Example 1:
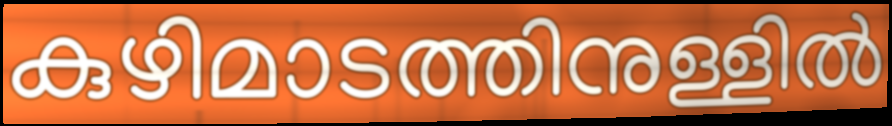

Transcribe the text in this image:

കുഴിമാടത്തിനുള്ളിൽ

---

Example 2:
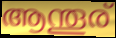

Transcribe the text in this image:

ആന്തൂര്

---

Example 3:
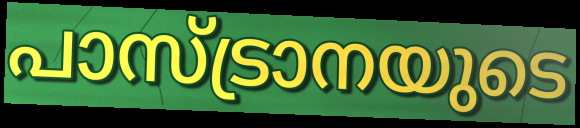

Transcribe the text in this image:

പാസ്ട്രാനയുടെ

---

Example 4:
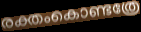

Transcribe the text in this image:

രക്തംകൊണ്ടത്രേ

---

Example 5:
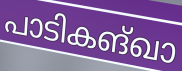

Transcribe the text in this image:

പാടികങ്ഖാ